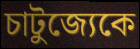
চাটুজ্যেকে